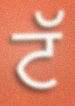
ਟੱ